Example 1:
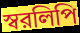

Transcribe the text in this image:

স্বরলিপি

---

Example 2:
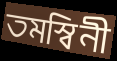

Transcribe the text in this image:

তমস্বিনী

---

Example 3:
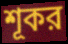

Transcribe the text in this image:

শূকর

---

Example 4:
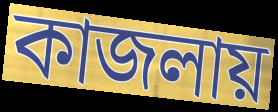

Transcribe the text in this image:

কাজলায়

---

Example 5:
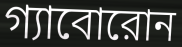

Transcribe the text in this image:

গ্যাবোরোন